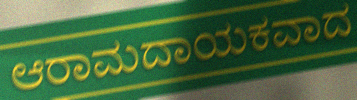
ಆರಾಮದಾಯಕವಾದ